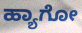
ಹ್ಯಾಗೋ